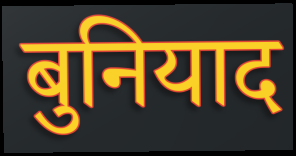
बुनियाद